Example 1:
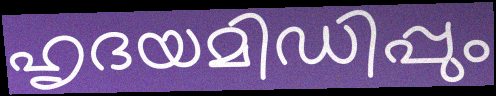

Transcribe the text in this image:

ഹൃദയമിഡിപ്പും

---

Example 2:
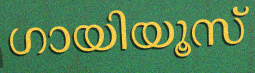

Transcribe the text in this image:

ഗായിയൂസ്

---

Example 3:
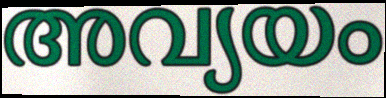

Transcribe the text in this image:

അവ്യയം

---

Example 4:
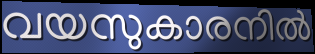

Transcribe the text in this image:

വയസുകാരനിൽ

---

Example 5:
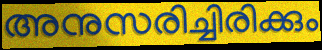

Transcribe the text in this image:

അനുസരിച്ചിരിക്കും